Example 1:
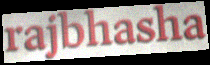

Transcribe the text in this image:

rajbhasha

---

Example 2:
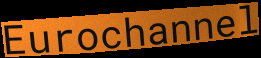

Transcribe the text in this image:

Eurochannel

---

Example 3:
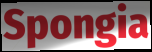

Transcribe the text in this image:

Spongia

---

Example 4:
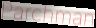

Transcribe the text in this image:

Parchman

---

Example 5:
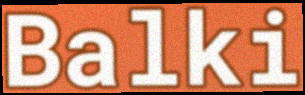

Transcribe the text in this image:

Balki